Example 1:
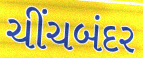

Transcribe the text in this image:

ચીંચબંદર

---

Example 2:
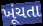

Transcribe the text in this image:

ખૂંચતા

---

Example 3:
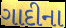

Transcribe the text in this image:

ગાદીના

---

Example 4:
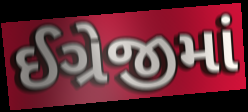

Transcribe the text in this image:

ઈગ્રેજીમાં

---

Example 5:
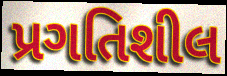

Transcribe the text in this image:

પ્રગતિશીલ